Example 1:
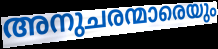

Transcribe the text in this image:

അനുചരന്മാരെയും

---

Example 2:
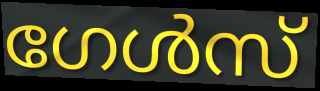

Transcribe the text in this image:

ഗേൾസ്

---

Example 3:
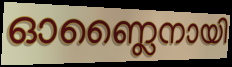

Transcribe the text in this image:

ഓണ്ലൈനായി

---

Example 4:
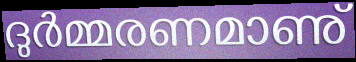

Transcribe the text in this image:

ദുർമ്മരണമാണു്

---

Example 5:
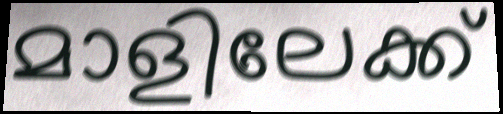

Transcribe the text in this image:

മാളിലേക്ക്